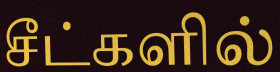
சீட்களில்